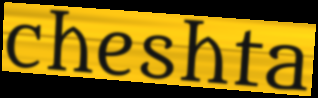
cheshta